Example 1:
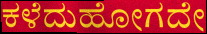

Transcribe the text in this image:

ಕಳೆದುಹೋಗದೇ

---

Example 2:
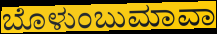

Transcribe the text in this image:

ಬೊಳುಂಬುಮಾವಾ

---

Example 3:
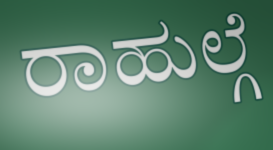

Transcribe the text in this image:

ರಾಹುಲ್ಗೆ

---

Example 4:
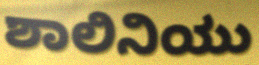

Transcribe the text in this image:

ಶಾಲಿನಿಯು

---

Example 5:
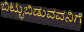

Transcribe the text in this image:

ಬಿಟ್ಟುಬಿಡುವವನಿಗೆ